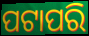
ପଟାପରି